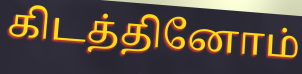
கிடத்தினோம்